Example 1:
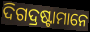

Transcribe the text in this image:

ଦିଗଦ୍ରଷ୍ଟାମାନେ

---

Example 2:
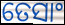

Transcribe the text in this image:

ତେସାଂ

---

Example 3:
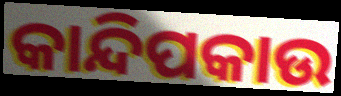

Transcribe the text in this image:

କାନ୍ଦିପକାଉ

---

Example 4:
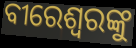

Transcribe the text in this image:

ବୀରେଶ୍ୱରଙ୍କୁ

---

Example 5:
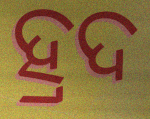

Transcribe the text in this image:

ହ୍ରଦ